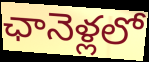
ఛానెళ్లలో